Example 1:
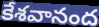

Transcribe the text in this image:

కేశవానంద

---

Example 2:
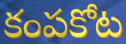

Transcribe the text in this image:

కంపకోట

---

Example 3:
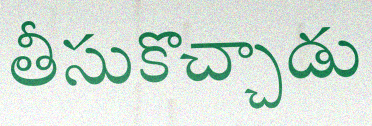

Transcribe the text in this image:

తీసుకొచ్చాడు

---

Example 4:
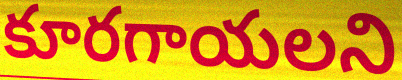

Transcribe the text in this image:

కూరగాయలని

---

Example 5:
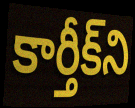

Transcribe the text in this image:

కార్తీక్‌ని